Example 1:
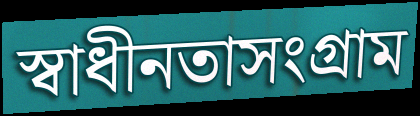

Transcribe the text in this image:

স্বাধীনতাসংগ্রাম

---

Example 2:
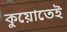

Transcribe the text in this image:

কুয়োতেই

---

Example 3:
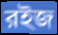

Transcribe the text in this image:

রইজ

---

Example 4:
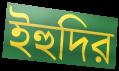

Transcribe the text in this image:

ইহুদির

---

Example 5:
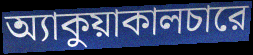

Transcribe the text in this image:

অ্যাকুয়াকালচারে